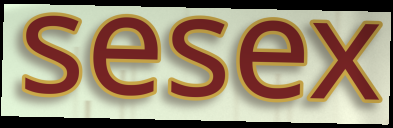
sesex